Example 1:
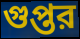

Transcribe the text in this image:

গুপ্তর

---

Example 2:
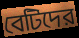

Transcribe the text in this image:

বেটিদের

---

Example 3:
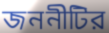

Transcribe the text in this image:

জননীটির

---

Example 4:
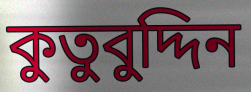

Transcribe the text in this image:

কুতুবুদ্দিন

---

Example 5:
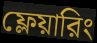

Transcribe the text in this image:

ফ্লেয়ারিং